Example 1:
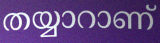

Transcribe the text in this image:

തയ്യാറാണ്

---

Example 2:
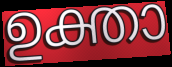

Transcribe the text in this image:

ഉക്താ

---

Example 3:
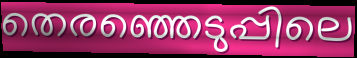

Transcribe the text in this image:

തെരഞ്ഞെടുപ്പിലെ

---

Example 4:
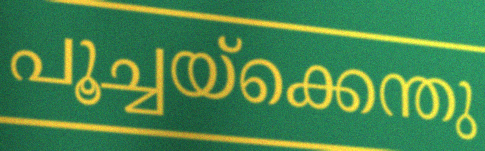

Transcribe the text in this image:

പൂച്ചയ്ക്കെന്തു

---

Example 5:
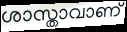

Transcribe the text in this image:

ശാസ്താവാണ്